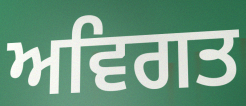
ਅਵਿਗਤ